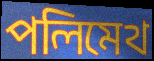
পলিমেথ